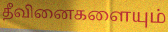
தீவினைகளையும்